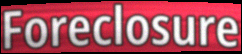
Foreclosure